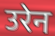
उरेन